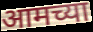
आमच्या